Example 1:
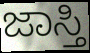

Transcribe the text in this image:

ಜಾಸ್ತಿ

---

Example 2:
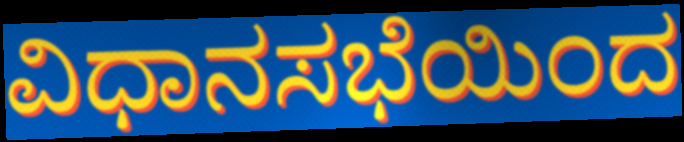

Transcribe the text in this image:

ವಿಧಾನಸಭೆಯಿಂದ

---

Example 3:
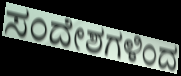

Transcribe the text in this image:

ಸಂದೇಶಗಳಿಂದ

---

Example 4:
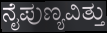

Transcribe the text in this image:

ನೈಪುಣ್ಯವಿತ್ತು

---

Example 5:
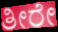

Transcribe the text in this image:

ತೀರೇ